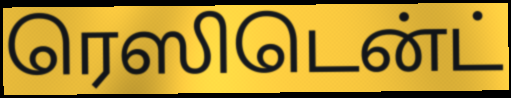
ரெஸிடென்ட்